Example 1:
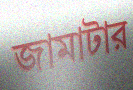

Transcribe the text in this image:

জামাটার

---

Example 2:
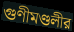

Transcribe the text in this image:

গুণীমণ্ডলীর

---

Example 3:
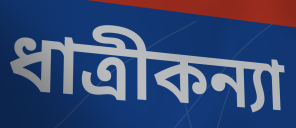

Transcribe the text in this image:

ধাত্রীকন্যা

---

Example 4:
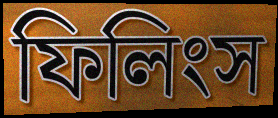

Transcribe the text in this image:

ফিলিংস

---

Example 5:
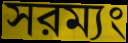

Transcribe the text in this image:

সরম্যং